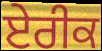
ਏਰੀਕ